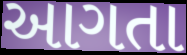
આગતા